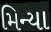
મિન્યા